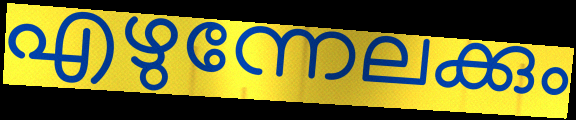
എഴുന്നേലക്കും